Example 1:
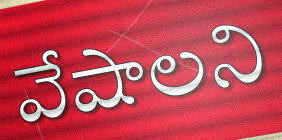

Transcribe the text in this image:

వేషాలని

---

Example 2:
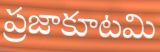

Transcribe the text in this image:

ప్రజాకూటమి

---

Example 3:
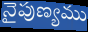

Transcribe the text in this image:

నైపుణ్యము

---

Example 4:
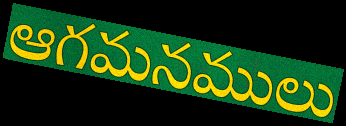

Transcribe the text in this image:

ఆగమనములు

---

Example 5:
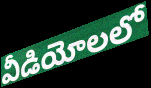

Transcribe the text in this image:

వీడియోలలో